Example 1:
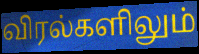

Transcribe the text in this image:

விரல்களிலும்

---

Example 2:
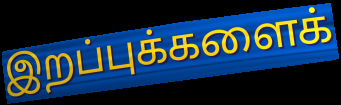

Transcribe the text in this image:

இறப்புக்களைக்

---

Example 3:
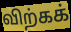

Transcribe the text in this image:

விற்கக்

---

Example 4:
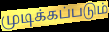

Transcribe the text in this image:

முடிக்கப்படும்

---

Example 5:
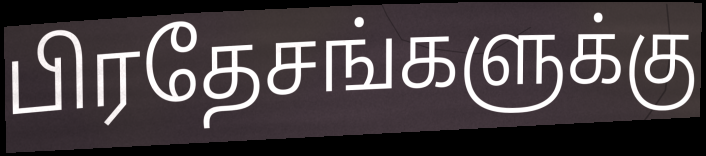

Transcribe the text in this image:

பிரதேசங்களுக்கு